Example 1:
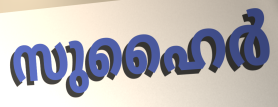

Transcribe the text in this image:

സുഹൈർ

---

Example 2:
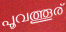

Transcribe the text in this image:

പൂവത്തൂര്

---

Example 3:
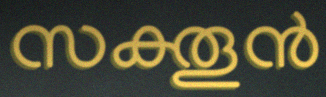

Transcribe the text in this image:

സക്തൂൻ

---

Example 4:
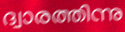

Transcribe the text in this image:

ദ്വാരത്തിന്നു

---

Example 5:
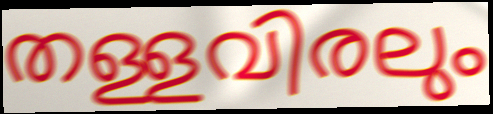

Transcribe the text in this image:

തള്ളവിരലും